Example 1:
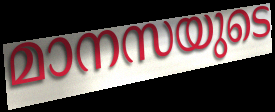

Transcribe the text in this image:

മാനസയുടെ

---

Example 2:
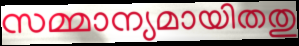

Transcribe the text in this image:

സമ്മാന്യമായിതതു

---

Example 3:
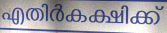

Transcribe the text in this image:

എതിർകക്ഷിക്ക്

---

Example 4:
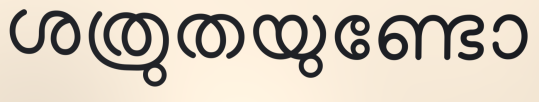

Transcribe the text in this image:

ശത്രുതയുണ്ടോ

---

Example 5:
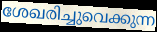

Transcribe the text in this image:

ശേഖരിച്ചുവെക്കുന്ന